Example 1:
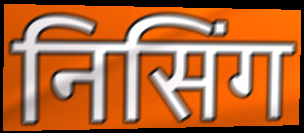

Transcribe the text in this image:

निसिंग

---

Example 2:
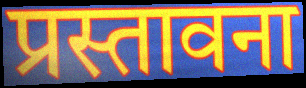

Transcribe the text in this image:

प्रस्‍तावना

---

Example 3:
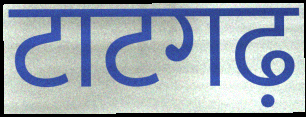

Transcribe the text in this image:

टाटगढ़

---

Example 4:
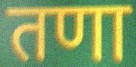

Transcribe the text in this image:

तणा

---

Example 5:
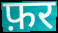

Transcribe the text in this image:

फ़र